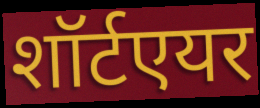
शॉर्टएयर